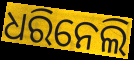
ଧରିନେଲି